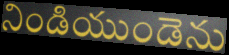
నిండియుండెను